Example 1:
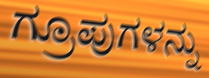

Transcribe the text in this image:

ಗ್ರೂಪುಗಳನ್ನು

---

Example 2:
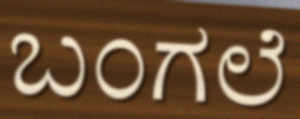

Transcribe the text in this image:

ಬಂಗಲೆ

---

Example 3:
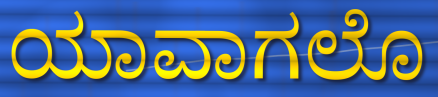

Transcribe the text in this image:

ಯಾವಾಗಲೊ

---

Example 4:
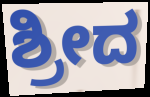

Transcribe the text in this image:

ಶ್ರೀದ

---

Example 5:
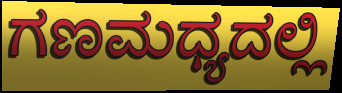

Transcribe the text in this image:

ಗಣಮಧ್ಯದಲ್ಲಿ